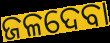
ଜଳଦେବା